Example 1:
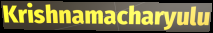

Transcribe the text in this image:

Krishnamacharyulu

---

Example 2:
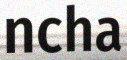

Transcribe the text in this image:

ncha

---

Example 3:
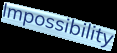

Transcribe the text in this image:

Impossibility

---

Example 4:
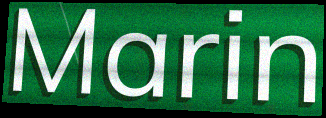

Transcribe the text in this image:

Marin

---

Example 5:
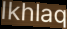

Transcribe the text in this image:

Ikhlaq